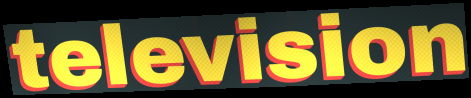
television